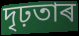
দৃঢ়তাৰ